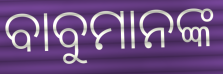
ବାବୁମାନଙ୍କ